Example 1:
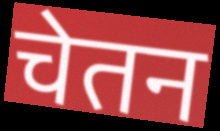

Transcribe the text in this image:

चेतन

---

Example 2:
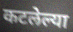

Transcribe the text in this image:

कटलेल्या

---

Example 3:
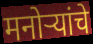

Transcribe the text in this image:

मनोऱ्यांचे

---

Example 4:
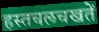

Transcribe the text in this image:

हस्तचलचखतें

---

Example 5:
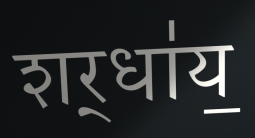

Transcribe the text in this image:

शर्धा॑य॒